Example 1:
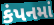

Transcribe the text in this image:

કંપનમાં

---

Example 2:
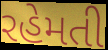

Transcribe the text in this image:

રહેમતી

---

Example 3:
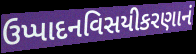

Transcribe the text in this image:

ઉપ્પાદનવિસયીકરણાનં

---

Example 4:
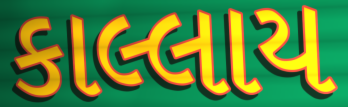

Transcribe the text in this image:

કાલ્લાય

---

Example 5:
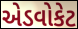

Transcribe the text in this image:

એડવોકેટ